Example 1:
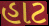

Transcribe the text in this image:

હાટ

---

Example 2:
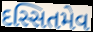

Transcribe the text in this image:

દસ્સિતમેવ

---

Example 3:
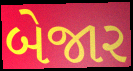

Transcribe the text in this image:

બેજાર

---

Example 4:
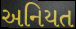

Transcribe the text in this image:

અનિયત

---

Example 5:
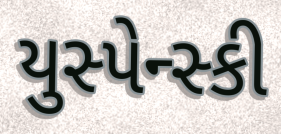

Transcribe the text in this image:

યુસ્પેન્સ્કી